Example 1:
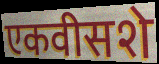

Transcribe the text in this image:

एकवीसशे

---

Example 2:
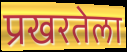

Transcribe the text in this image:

प्रखरतेला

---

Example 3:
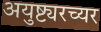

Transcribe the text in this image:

अयुष्ट्यरच्यर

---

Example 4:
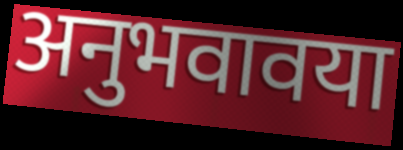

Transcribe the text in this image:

अनुभवावया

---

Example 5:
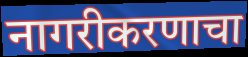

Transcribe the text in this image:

नागरीकरणाचा